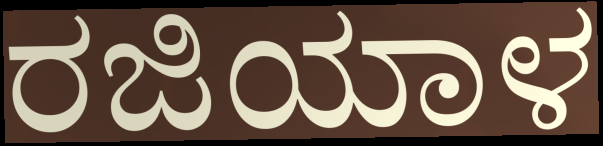
ರಜಿಯಾಳ